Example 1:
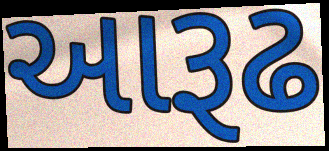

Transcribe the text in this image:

આરૂઢ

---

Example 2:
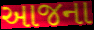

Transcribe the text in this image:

આજના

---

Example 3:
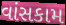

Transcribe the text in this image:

વાંસકામ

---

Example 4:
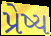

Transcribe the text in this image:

પ્રેષ્ય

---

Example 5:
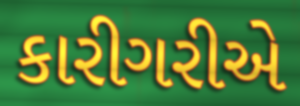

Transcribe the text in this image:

કારીગરીએ